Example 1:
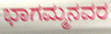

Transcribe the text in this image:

ಭಾಗಮ್ಮನವರ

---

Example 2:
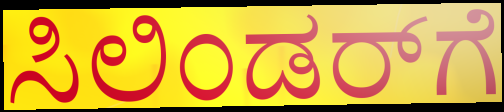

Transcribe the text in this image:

ಸಿಲಿಂಡರ್‌ಗೆ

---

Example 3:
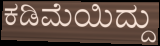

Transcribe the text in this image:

ಕಡಿಮೆಯಿದ್ದು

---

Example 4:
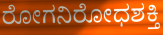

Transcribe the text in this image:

ರೋಗನಿರೋಧಶಕ್ತಿ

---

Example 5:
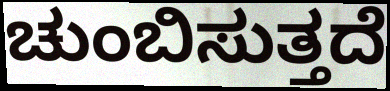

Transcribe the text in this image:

ಚುಂಬಿಸುತ್ತದೆ